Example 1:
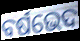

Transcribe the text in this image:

ବର୍ଷଭେଦ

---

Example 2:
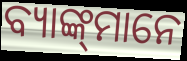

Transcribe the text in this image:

ବ୍ୟାଙ୍କ୍‌ମାନେ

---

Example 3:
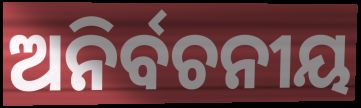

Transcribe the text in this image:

ଅନିର୍ବଚନୀୟ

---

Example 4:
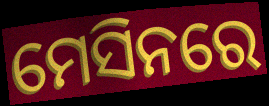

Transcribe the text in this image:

ମେସିନରେ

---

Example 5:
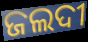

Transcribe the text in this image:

ଜଲଦୀ